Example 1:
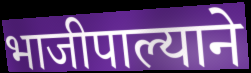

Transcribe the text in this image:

भाजीपाल्याने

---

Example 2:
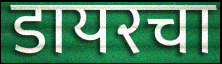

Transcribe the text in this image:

डायरचा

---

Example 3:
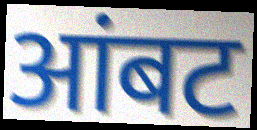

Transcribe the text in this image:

आंबट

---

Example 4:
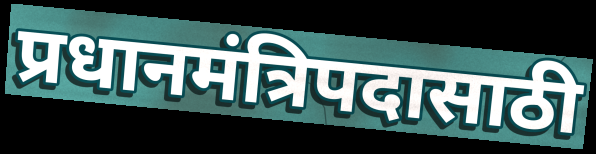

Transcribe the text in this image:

प्रधानमंत्रिपदासाठी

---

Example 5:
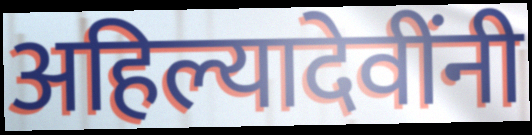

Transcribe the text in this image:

अहिल्यादेवींनी